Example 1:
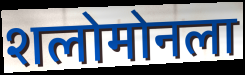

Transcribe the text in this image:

शलोमोनला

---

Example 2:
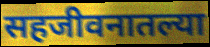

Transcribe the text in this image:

सहजीवनातल्या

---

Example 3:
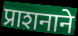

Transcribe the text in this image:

प्राशनाने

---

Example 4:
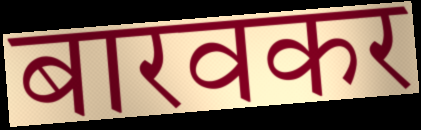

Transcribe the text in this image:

बारवकर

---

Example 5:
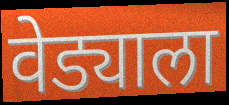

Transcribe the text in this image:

वेड्याला